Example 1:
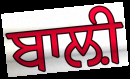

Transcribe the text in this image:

ਬਾਲ਼ੀ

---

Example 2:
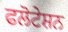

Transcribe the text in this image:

ਫਲੋਟੇਸ਼ਨ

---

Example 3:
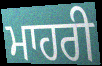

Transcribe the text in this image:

ਮਾਹਰੀ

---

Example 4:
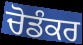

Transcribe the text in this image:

ਚੋਡੰਕਰ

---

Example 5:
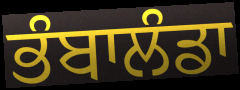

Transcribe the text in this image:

ਭੰਬਾਲੰਡਾ